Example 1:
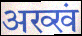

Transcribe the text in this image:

अख्खं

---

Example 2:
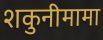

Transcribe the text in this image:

शकुनीमामा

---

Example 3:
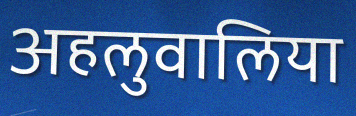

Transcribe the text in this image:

अहलुवालिया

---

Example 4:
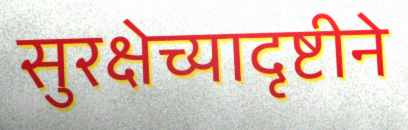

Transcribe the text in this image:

सुरक्षेच्यादृष्टीने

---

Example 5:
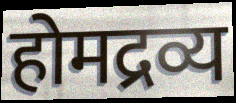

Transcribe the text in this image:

होमद्रव्य